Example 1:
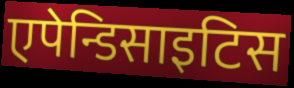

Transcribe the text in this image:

एपेन्डिसाइटिस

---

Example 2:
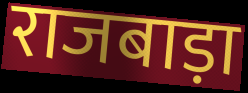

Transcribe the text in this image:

राजबाड़ा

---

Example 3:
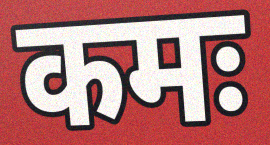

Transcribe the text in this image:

कमः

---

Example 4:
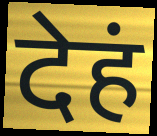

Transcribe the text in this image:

देहं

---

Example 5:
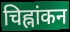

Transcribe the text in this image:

चिह्नांकन